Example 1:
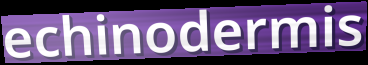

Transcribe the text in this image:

echinodermis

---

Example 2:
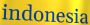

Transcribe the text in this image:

indonesia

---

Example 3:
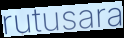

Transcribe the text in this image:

rutusara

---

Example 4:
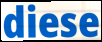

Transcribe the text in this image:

diese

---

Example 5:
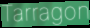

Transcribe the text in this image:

Tarragon